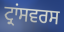
ਟ੍ਰਾਂਸਵਰਸ